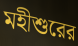
মহীশুরের